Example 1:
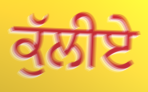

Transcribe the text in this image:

ਕੁੱਲੀਏ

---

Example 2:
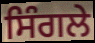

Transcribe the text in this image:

ਸਿੰਗਲੇ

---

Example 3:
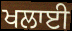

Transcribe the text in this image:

ਖਲਾਈ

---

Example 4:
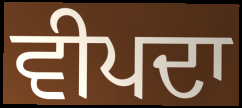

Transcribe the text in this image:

ਵੀਪਦਾ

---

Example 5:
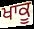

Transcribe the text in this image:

ਖਾਕੂ